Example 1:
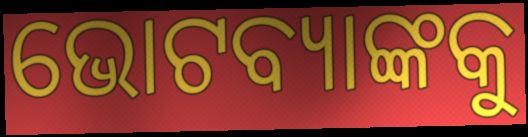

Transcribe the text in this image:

ଭୋଟବ୍ୟାଙ୍କକୁ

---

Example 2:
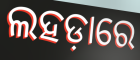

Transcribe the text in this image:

ଲହଡ଼ାରେ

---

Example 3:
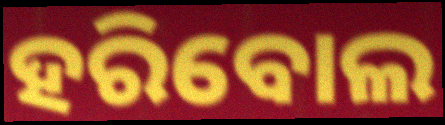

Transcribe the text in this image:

ହରିବୋଲ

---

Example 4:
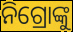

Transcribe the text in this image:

ନିଗ୍ରୋଙ୍କୁ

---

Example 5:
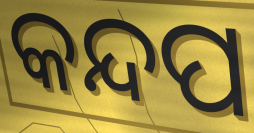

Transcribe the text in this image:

କନ୍ଦପ